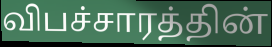
விபச்சாரத்தின்